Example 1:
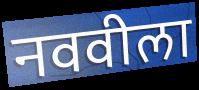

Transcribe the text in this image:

नववीला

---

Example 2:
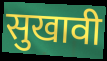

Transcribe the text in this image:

सुखावी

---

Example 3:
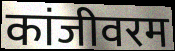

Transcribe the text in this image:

कांजीवरम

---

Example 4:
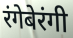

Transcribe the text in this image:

रंगेबेरंगी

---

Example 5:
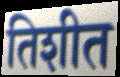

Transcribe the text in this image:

तिशीत